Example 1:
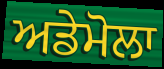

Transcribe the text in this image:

ਅਡੇਮੋਲਾ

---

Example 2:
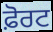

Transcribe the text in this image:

ਫ਼ੋਰਟ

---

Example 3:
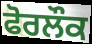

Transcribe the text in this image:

ਫੋਰਲੌਕ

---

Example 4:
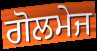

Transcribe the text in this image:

ਗੋਲਮੇਜ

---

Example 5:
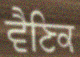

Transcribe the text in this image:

ਵੈਣਿਕ